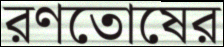
রণতোষের